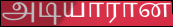
அடியாரான